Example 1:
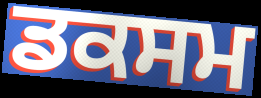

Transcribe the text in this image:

ਡਕਸਮ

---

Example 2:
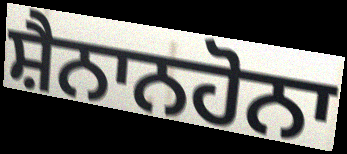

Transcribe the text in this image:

ਸ਼ੈਨਾਨਹੋਨਾ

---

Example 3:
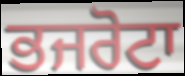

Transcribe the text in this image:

ਭਜਰੋਟਾ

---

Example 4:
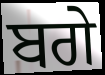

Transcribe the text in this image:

ਬਗੇ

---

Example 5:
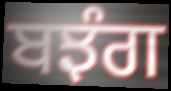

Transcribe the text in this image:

ਬਝੰਗ